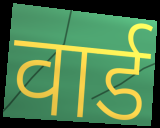
वार्ड